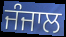
ਜੰਜਾਲ